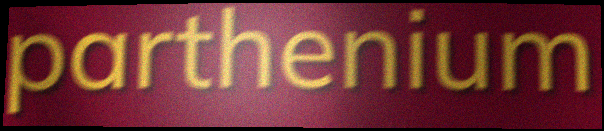
parthenium